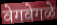
वेगवेगळे